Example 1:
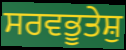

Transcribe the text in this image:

ਸਰਵਭੂਤੇਸ਼ੁ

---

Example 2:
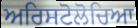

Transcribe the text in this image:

ਅਰਿਸਟੋਲੋਚਿਆ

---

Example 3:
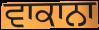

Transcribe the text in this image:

ਵਾਕਾਨਾ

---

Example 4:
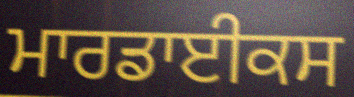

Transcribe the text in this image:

ਮਾਰਡਾਈਕਸ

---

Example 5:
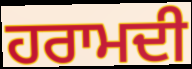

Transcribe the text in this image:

ਹਰਾਮਦੀ